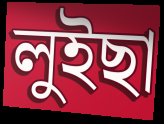
লুইছা